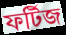
ফর্টিজ